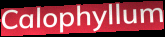
Calophyllum